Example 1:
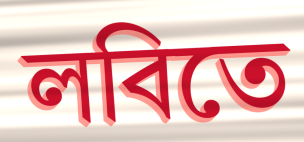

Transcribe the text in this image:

লবিতে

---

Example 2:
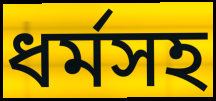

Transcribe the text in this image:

ধর্মসহ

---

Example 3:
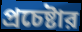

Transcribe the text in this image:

প্রচেষ্টার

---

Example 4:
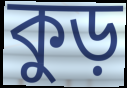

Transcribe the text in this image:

কুড়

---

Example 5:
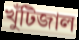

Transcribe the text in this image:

খুঁটিজাল